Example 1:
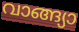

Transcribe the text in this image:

വാങ്ങ്യാ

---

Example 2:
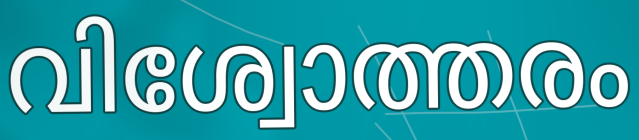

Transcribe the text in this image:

വിശ്വോത്തരം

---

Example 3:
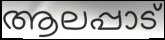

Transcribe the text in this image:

ആലപ്പാട്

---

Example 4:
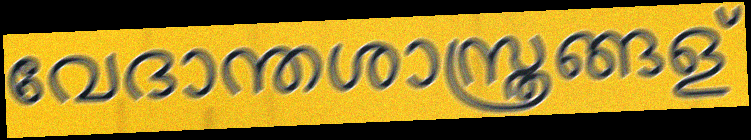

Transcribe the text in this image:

വേദാന്തശാസ്ത്രങ്ങള്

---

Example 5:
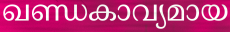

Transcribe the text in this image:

ഖണ്ഡകാവ്യമായ